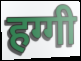
हग्गी